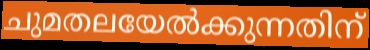
ചുമതലയേൽക്കുന്നതിന്